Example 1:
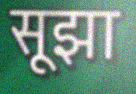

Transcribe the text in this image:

सूझा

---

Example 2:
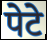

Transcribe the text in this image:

पेटे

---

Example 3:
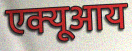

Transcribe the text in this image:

एक्यूआय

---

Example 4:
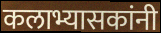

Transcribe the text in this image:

कलाभ्यासकांनी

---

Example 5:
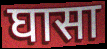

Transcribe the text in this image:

घासा